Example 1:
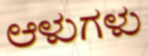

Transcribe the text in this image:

ಆಳುಗಳು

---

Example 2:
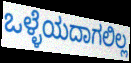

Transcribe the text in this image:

ಒಳ್ಳೆಯದಾಗಲಿಲ್ಲ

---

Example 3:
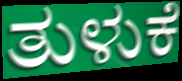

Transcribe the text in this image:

ತುಳುಕೆ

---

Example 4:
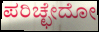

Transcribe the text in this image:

ಪರಿಚ್ಛೇದೋ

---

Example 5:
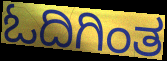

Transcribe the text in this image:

ಓದಿಗಿಂತ